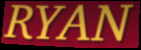
RYAN